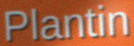
Plantin